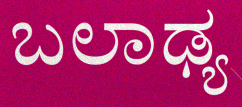
ಬಲಾಢ್ಯ